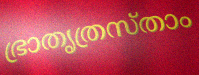
ഭ്രാതൃത്രസ്താം